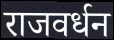
राजवर्धन